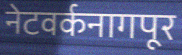
नेटवर्कनागपूर